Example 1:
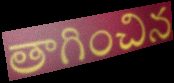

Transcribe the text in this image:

తాగించిన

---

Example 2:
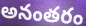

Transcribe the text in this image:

అనంతరం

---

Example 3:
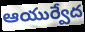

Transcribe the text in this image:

ఆయుర్వేద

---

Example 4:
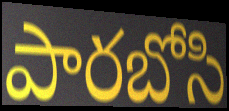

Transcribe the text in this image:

పారబోసి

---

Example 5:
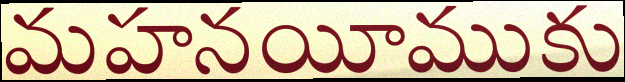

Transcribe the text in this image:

మహనయీముకు